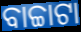
ବାଚ୍ଚାଟା